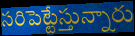
సరిపెట్టేస్తున్నారు